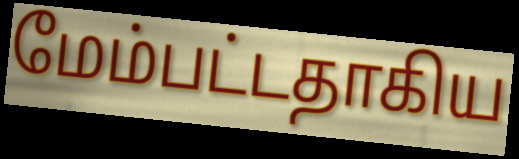
மேம்பட்டதாகிய